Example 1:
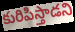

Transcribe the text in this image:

కురిపిస్తాడని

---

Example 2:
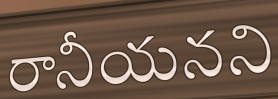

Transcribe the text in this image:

రానీయనని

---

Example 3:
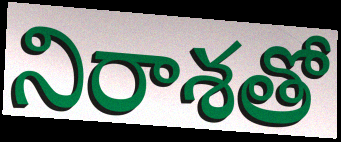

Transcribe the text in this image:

నిరాశతో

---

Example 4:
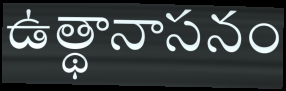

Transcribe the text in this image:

ఉత్థానాసనం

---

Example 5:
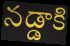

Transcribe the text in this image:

నడ్డాకి